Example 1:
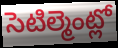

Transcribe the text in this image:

సెటిల్మెంట్లో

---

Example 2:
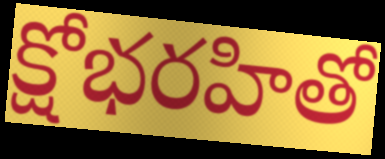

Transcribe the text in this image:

క్షోభరహితో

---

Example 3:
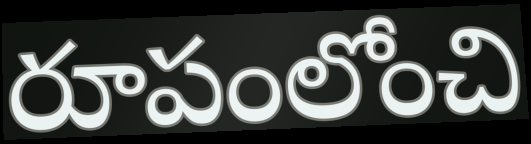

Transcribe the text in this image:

రూపంలోంచి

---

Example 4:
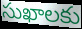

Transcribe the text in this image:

సుఖాలకు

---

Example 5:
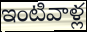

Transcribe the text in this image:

ఇంటివాళ్ల